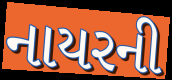
નાયરની